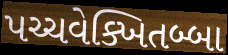
પચ્ચવેક્ખિતબ્બા